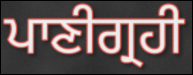
ਪਾਣੀਗ੍ਰਹੀ